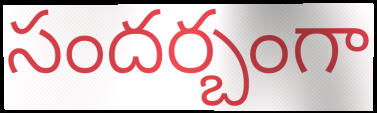
సందర్బంగా